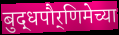
बुद्धपौर्णिमेच्या